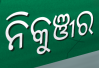
ନିକୁଞ୍ଜର